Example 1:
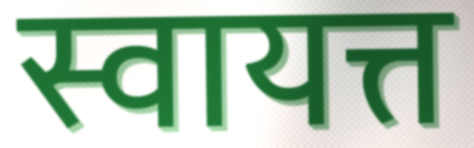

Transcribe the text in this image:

स्वायत्त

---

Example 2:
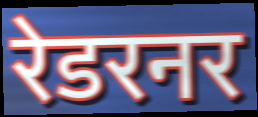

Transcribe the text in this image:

रेडरनर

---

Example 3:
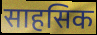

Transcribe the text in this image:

साहसिक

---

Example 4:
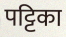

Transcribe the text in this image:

पट्टिका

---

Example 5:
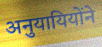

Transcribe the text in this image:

अनुयायियोंने